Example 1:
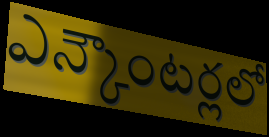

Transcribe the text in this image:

ఎన్కౌంటర్లలో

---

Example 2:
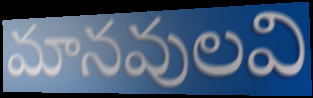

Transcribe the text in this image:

మానవులవి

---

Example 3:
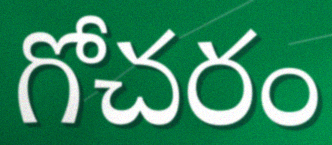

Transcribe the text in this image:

గోచరం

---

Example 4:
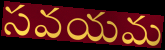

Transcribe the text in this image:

సవయమ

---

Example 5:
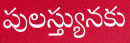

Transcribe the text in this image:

పులస్త్యునకు